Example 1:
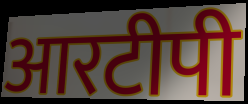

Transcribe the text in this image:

आरटीपी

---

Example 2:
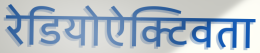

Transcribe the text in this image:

रेडियोऐक्टिवता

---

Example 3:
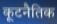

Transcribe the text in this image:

कूटनैतिक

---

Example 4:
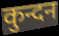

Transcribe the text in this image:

कुन्दन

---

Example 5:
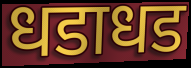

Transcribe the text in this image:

धडाधड